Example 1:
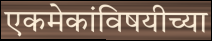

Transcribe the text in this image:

एकमेकांविषयीच्या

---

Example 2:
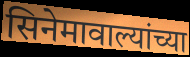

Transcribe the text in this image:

सिनेमावाल्यांच्या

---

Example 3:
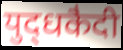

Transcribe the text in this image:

युद्धकैदी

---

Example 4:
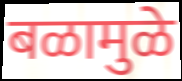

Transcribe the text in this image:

बळामुळे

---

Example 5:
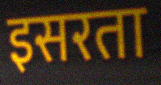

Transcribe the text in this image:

इसरता